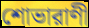
শোভারাণী